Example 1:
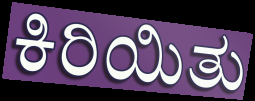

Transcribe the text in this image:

ಕಿರಿಯಿತು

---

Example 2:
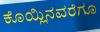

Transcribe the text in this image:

ಕೊಯ್ಲಿನವರೆಗೂ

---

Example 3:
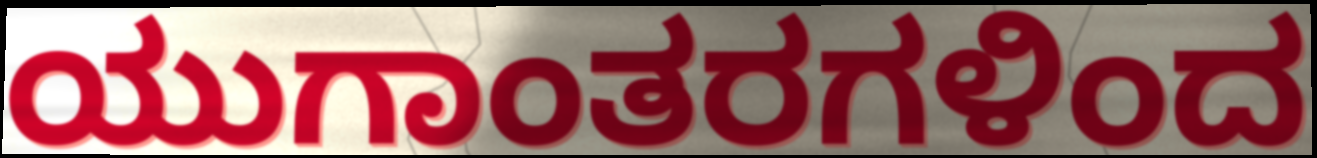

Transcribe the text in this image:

ಯುಗಾಂತರಗಳಿಂದ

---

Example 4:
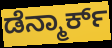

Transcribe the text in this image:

ಡೆನ್ಮಾರ್ಕ್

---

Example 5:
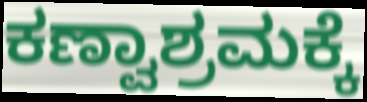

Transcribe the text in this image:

ಕಣ್ವಾಶ್ರಮಕ್ಕೆ